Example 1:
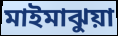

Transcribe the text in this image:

মাইমাঝুয়া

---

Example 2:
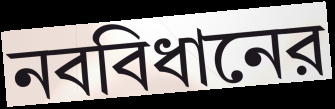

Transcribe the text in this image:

নববিধানের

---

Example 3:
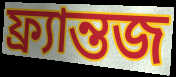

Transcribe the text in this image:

ফ্র্যান্তজ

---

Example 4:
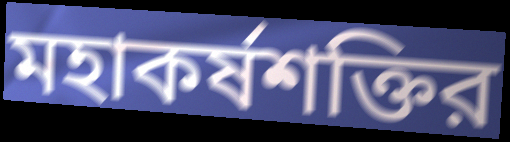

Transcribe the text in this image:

মহাকর্ষশক্তির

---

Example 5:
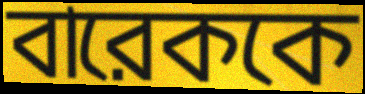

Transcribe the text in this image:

বারেককে